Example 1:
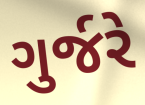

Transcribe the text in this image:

ગુર્જરે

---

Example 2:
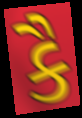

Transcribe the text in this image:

કૈ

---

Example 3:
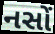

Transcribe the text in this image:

નસોં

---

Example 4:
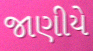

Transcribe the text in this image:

જાણીયે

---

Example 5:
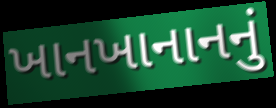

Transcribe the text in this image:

ખાનખાનાનનું